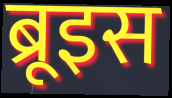
ब्रूइस